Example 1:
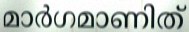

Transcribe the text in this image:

മാർഗമാണിത്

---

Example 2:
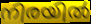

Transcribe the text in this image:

നിരയിൽ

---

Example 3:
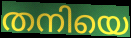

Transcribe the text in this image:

തനിയെ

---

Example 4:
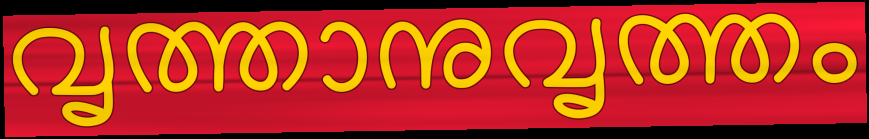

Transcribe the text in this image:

വൃത്താനുവൃത്തം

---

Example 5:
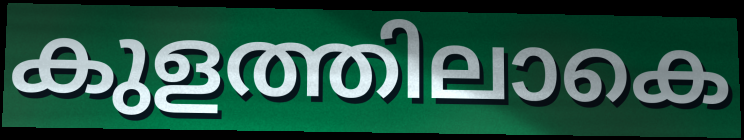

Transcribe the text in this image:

കുളത്തിലാകെ